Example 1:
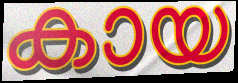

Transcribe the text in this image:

കായ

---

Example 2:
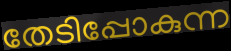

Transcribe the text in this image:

തേടിപ്പോകുന്ന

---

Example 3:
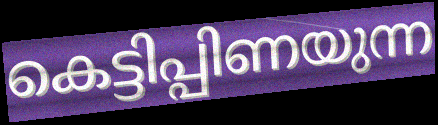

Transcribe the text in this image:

കെട്ടിപ്പിണയുന്ന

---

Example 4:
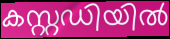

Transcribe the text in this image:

കസ്റ്റഡിയിൽ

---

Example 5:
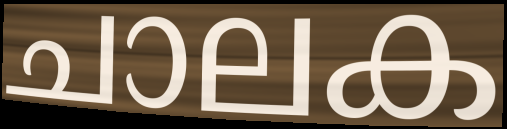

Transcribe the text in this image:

ചാലക